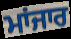
ਮਾਂਜਾਰ